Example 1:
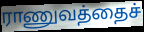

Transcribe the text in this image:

ராணுவத்தைச்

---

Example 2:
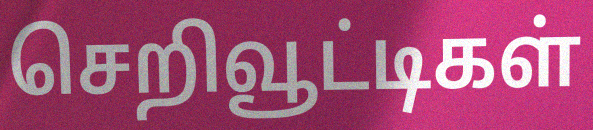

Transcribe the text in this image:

செறிவூட்டிகள்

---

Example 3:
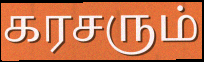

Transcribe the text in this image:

கரசரும்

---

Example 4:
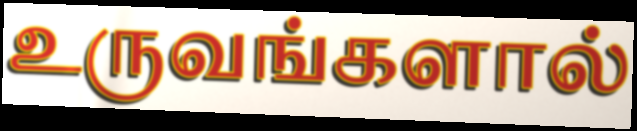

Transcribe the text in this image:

உருவங்களால்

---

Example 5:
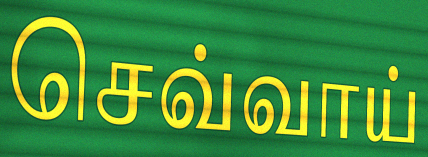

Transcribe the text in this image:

செவ்வாய்